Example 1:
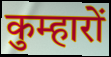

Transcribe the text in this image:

कुम्हारों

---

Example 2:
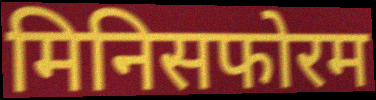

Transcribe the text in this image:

मिनिसफोरम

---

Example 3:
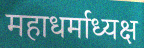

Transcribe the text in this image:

महाधर्माध्यक्ष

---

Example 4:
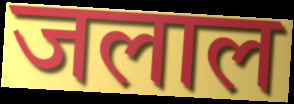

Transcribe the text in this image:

जलाल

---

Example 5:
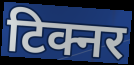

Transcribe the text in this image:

टिक्नर